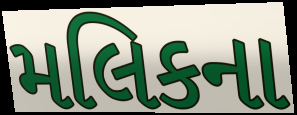
મલિકના